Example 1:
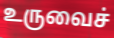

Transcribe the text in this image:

உருவைச்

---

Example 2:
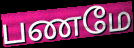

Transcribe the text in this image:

பணமே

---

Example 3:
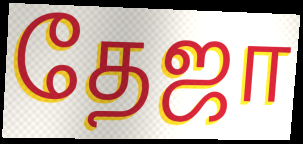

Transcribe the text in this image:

தேஜா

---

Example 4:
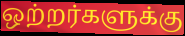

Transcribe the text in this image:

ஒற்றர்களுக்கு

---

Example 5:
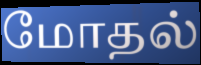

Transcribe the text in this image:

மோதல்